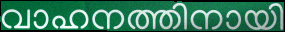
വാഹനത്തിനായി